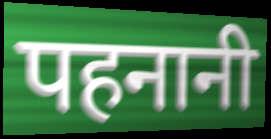
पहनानी